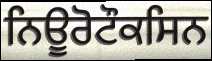
ਨਿਊਰੋਟੌਕਸਿਨ